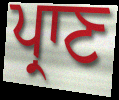
ਪ੍ਰਾਣ